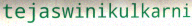
tejaswinikulkarni